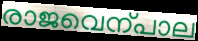
രാജവെന്പാല